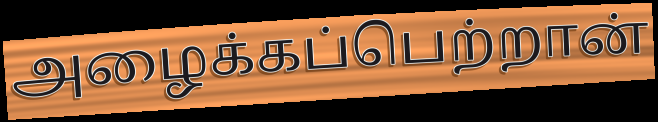
அழைக்கப்பெற்றான்